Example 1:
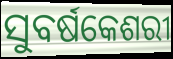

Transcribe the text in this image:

ସୁବର୍ଷକେଶରୀ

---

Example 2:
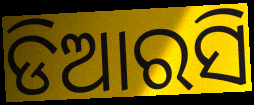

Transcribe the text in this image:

ଡିଆରସି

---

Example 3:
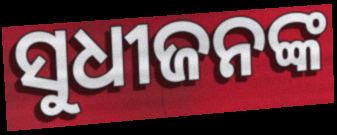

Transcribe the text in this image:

ସୁଧୀଜନଙ୍କ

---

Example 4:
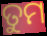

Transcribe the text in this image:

ତୁମ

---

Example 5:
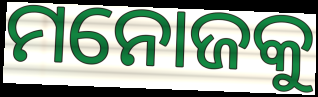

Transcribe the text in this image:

ମନୋଜକୁ